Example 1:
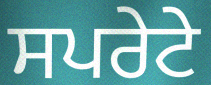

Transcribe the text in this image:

ਸਪਰੇਟੇ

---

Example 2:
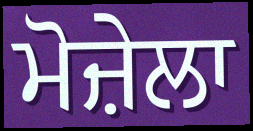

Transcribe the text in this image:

ਮੋਜ਼ੇਲਾ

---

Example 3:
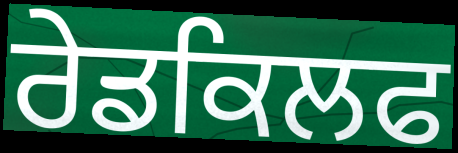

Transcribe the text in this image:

ਰੇਡਕਿਲਫ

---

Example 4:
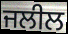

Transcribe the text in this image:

ਜਲੀਲ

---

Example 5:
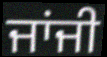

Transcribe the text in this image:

ਜਾਂਜੀ